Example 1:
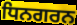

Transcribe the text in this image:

ਧਿਨਗਰਨ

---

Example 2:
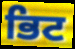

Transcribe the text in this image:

ਭਿਟ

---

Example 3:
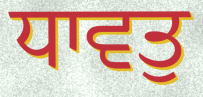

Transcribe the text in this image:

ਧਾਵਤੁ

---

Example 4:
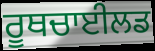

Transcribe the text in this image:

ਰੂਥਚਾਈਲਡ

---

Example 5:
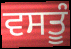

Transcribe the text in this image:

ਵਸਤੂੰ